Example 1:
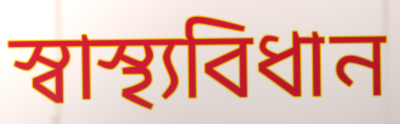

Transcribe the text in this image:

স্বাস্থ্যবিধান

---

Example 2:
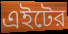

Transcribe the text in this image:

এইটের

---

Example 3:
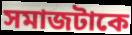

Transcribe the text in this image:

সমাজটাকে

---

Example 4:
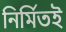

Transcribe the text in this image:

নির্মিতই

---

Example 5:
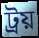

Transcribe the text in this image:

ট্রয়